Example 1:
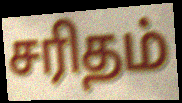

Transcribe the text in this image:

சரிதம்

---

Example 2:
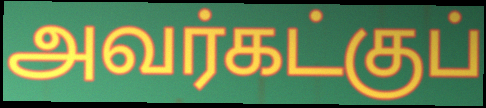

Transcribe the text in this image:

அவர்கட்குப்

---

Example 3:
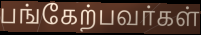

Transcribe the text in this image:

பங்கேற்பவர்கள்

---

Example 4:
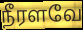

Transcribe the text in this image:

நீரளவே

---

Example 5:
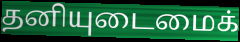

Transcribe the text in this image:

தனியுடைமைக்